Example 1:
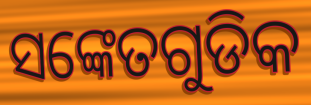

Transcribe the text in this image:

ସଙ୍କେତଗୁଡିକ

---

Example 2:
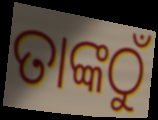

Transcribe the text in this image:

ତାଙ୍କଠୁଁ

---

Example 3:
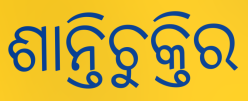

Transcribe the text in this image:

ଶାନ୍ତିଚୁକ୍ତିର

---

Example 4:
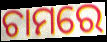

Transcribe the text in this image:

ଚାମରେ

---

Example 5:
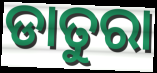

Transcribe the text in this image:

ଡାତୁରା